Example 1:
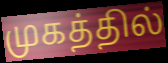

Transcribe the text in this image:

முகத்தில்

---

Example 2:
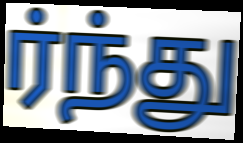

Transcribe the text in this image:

ர்ந்து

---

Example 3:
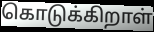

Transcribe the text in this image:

கொடுக்கிறாள்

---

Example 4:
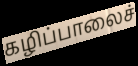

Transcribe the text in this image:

கழிப்பாலைச்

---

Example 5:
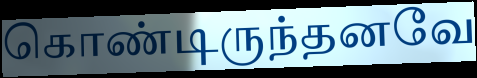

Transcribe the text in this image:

கொண்டிருந்தனவே